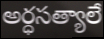
అర్ధసత్యాలే